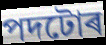
পদটোৰ